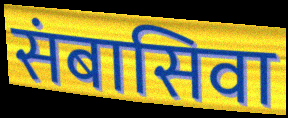
संबासिवा